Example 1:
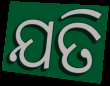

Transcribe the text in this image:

ଯତି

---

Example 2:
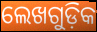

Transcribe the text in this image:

ଲେଖଗୁଡ଼ିକ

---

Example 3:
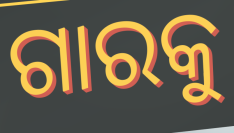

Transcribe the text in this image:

ଗାରକୁ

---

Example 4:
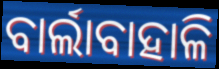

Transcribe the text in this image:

ବାର୍ଲାବାହାଳି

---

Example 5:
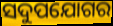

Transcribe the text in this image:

ସଦୁପଯୋଗର